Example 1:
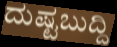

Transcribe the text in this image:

ದುಷ್ಟಬುದ್ದಿ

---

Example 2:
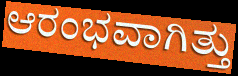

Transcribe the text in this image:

ಆರಂಭವಾಗಿತ್ತು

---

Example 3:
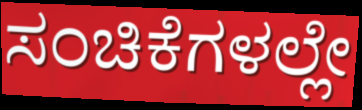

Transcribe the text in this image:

ಸಂಚಿಕೆಗಳಲ್ಲೇ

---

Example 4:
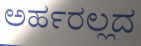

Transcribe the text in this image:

ಅರ್ಹರಲ್ಲದ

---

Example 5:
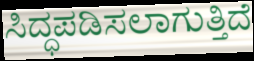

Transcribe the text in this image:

ಸಿದ್ಧಪಡಿಸಲಾಗುತ್ತಿದೆ